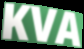
KVA